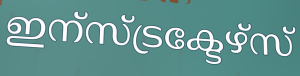
ഇന്സ്ട്രക്ടേഴ്സ്